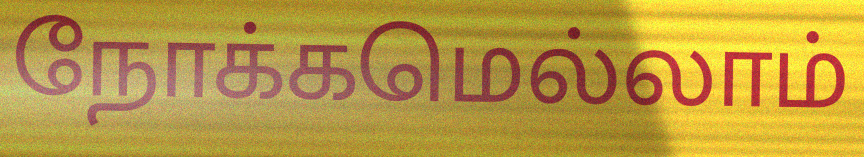
நோக்கமெல்லாம்